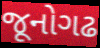
જૂનોગઢ